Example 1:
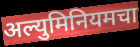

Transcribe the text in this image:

अल्युमिनियमचा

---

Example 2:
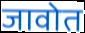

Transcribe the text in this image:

जावोत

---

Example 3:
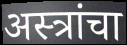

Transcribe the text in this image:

अस्त्रांचा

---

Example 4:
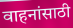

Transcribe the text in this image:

वाहनांसाठी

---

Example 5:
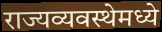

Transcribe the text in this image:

राज्यव्यवस्थेमध्ये